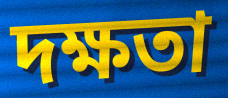
দক্ষতা